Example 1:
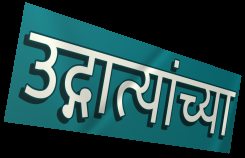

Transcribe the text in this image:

उद्गात्यांच्या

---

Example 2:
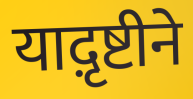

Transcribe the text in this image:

याद़ृष्टीने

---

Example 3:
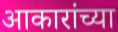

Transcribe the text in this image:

आकारांच्या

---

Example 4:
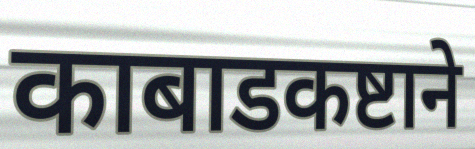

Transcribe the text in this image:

काबाडकष्टाने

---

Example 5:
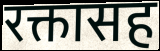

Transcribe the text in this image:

रक्तासह